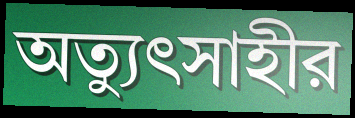
অত্যুৎসাহীর